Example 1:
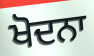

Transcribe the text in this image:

ਖੋਦਨਾ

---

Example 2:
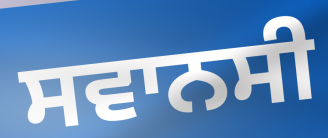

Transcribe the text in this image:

ਸਵਾਨਸੀ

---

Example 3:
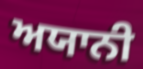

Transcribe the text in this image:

ਅਯਾਨੀ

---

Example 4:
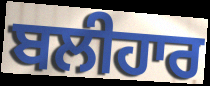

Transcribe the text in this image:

ਬਲੀਹਾਰ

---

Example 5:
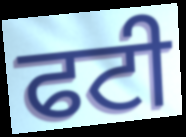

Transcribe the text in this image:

ਫਟੀ